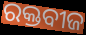
ରକ୍ତବୀଜ